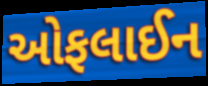
ઓફલાઈન